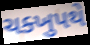
ચક્ખુપથે